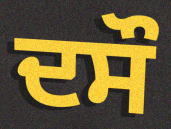
ਦਸੌ